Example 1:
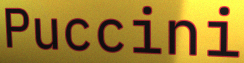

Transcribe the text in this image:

Puccini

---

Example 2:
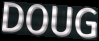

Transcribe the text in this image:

DOUG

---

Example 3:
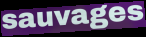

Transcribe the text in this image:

sauvages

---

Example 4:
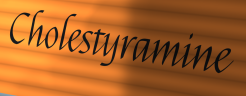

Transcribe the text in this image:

Cholestyramine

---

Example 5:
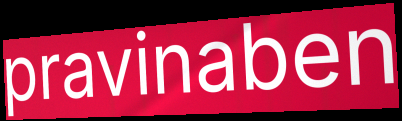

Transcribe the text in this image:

pravinaben